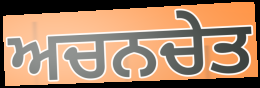
ਅਚਨਚੇਤ